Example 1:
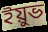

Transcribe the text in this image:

ইয়ুভ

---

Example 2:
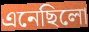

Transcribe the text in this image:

এনেছিলো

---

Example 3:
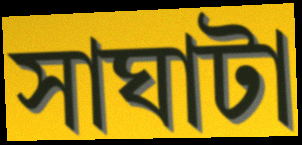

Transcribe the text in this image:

সাঘাটা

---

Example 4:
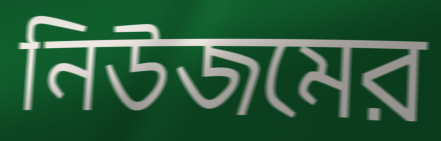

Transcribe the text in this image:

নিউজমের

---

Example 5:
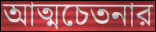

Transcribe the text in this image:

আত্মচেতনার